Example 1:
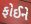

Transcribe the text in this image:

ફોઈને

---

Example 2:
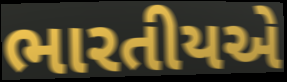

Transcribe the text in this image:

ભારતીયએ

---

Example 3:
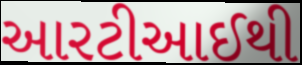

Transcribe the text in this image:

આરટીઆઈથી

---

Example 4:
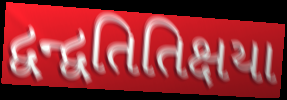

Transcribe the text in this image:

દ્વન્દ્વતિતિક્ષયા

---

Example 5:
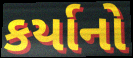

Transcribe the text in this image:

કર્યાનો